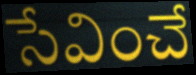
సేవించే